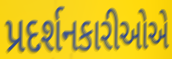
પ્રદર્શનકારીઓએ